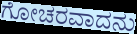
ಗೋಚರವಾದನು